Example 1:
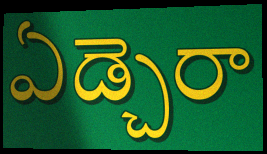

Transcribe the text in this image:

ఏడ్చెరా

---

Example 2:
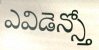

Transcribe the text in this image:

ఎవిడెన్స్తో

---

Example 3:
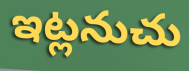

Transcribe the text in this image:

ఇట్లనుచు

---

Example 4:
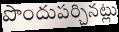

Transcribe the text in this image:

పొందుపర్చినట్లు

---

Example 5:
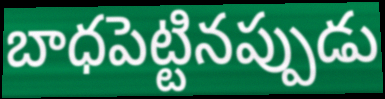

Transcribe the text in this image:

బాధపెట్టినప్పుడు